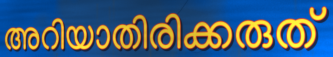
അറിയാതിരിക്കരുത്